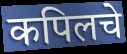
कपिलचे